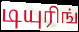
டியுரிங்